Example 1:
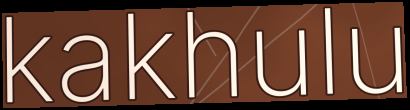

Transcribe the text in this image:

kakhulu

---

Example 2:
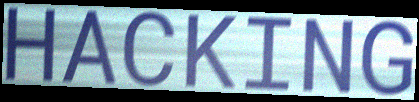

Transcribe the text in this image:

HACKING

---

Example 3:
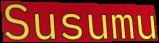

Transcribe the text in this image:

Susumu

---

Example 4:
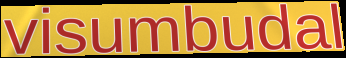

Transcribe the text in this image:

visumbudal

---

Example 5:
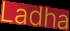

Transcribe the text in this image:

Ladha